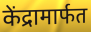
केंद्रामार्फत